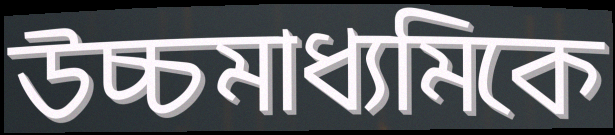
উচ্চমাধ্যমিকে